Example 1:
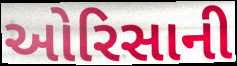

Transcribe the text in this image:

ઓરિસાની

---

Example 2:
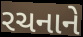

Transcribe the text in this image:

રચનાને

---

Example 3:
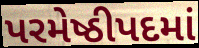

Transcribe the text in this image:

પરમેષ્ઠીપદમાં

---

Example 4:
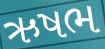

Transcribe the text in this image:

ઋષભ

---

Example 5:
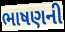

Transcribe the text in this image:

ભાષણની